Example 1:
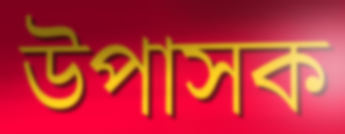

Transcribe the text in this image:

উপাসক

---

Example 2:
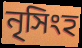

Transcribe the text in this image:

নৃসিংহ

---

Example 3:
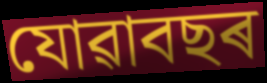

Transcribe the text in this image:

যোৱাবছৰ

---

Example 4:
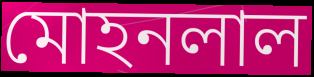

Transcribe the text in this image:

মোহনলাল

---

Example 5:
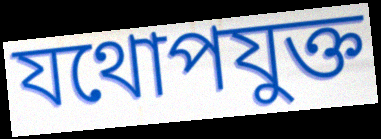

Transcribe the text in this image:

যথোপযুক্ত